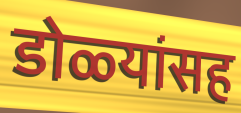
डोळ्यांसह